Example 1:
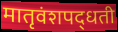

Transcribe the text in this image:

मातृवंशपद्धती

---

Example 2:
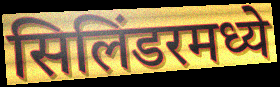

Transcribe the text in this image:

सिलिंडरमध्ये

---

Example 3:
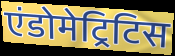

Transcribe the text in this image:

एंडोमेट्रिटिस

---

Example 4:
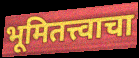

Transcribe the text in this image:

भूमितत्त्वाचा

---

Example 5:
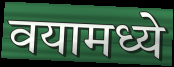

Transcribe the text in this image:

वयामध्ये